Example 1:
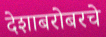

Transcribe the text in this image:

देशाबरोबरचे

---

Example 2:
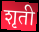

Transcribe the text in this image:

शृती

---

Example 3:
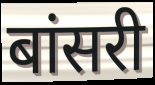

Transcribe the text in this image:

बांसरी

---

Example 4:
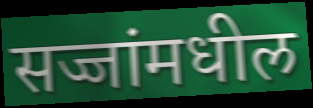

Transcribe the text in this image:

सज्जांमधील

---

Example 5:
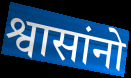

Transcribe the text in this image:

श्वासांनो